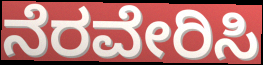
ನೆರವೇರಿಸಿ